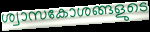
ശ്വാസകോശങ്ങളുടെ